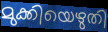
മുക്കിയെഴുതി